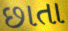
છાતા